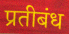
प्रतीबंध